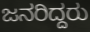
ಜನರಿದ್ದರು